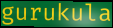
gurukula